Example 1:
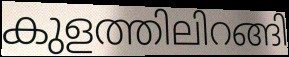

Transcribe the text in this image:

കുളത്തിലിറങ്ങി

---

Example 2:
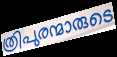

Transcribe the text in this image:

ത്രിപുരന്മാരുടെ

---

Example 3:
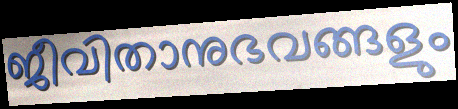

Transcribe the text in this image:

ജീവിതാനുഭവങ്ങളും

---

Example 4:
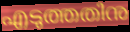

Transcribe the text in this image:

എടുത്തതിനു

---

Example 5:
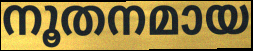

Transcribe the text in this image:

നൂതനമായ